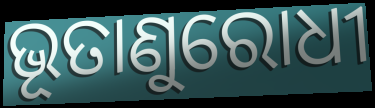
ଭୂତାଣୁରୋଧୀ